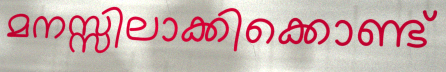
മനസ്സിലാക്കിക്കൊണ്ട്